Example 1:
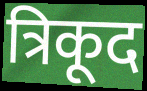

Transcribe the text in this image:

त्रिकूद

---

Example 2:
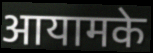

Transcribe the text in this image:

आयामके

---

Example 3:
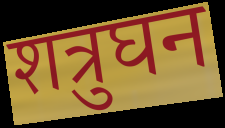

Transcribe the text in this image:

शत्रुघन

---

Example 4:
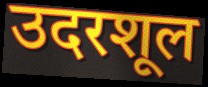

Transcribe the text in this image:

उदरशूल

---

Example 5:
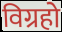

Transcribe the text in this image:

विग्रहो